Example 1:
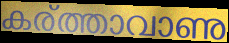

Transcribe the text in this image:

കര്ത്താവാണു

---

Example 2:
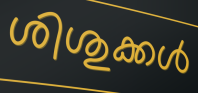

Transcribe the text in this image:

ശിശുക്കൾ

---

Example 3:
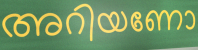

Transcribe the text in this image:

അറിയണോ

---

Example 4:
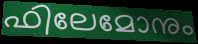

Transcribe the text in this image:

ഫിലേമോനും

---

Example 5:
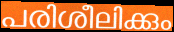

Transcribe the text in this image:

പരിശീലിക്കും